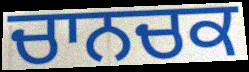
ਚਾਨਚਕ